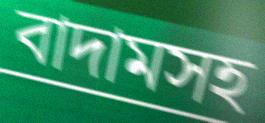
বাদামসহ